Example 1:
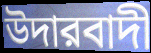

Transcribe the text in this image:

উদারবাদী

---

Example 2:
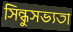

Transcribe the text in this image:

সিন্ধুসভ্যতা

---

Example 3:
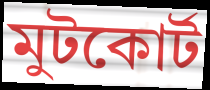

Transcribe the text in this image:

মুটকোর্ট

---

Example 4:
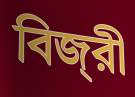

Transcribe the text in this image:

বিজ্‌রী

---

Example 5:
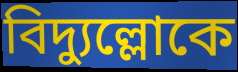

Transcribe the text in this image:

বিদ্যুল্লোকে